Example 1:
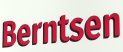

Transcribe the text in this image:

Berntsen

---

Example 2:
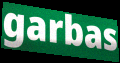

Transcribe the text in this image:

garbas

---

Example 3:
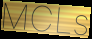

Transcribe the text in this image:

MCLs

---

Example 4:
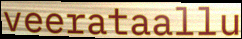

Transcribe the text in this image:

veerataallu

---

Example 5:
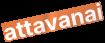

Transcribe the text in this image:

attavanai